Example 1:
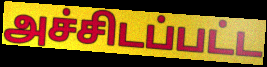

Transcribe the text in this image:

அச்சிடப்பட்ட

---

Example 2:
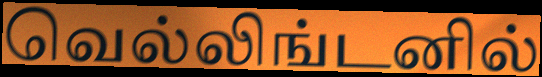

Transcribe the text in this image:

வெல்லிங்டனில்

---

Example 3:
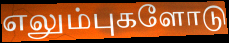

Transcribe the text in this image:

எலும்புகளோடு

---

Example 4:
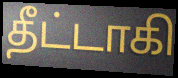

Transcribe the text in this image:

தீட்டாகி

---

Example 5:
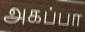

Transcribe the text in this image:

அகப்பா